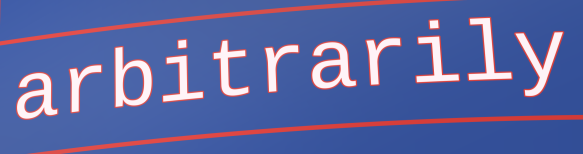
arbitrarily